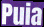
Puia